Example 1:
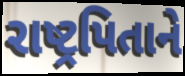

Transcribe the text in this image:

રાષ્ટ્રપિતાને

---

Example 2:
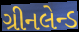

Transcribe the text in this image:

ગ્રીનલેન્ડ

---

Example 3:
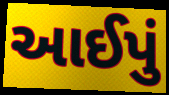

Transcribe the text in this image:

આઈપું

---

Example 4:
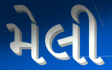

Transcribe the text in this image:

મેલી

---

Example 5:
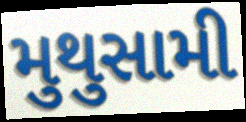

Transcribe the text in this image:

મુથુસામી